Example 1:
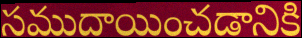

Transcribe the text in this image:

సముదాయించడానికి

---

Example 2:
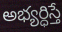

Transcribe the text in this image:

అభ్యర్ధిస్తే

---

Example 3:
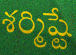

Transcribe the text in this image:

శర్మిష్టే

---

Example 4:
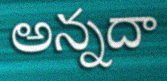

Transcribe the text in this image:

అన్నదా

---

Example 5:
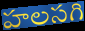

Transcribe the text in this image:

హలసగి